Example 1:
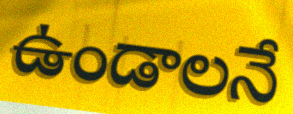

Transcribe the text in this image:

ఉండాలనే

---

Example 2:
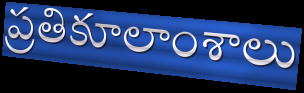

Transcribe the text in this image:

ప్రతికూలాంశాలు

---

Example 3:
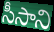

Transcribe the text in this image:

సీసాని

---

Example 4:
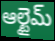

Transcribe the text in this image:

ఆల్టైమ్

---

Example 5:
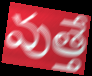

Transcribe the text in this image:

వుత్తే